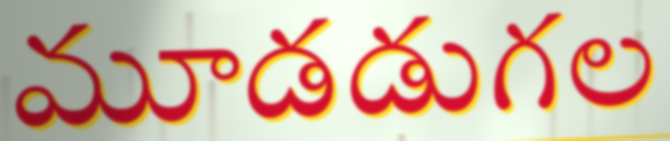
మూడడుగల